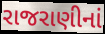
રાજરાણીનાં